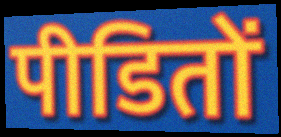
पीडितों